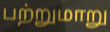
பற்றுமாறு